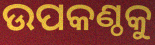
ଉପକଣ୍ଠକୁ